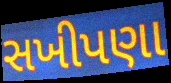
સખીપણા